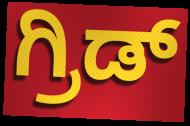
ಗ್ರಿಡ್